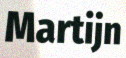
Martijn